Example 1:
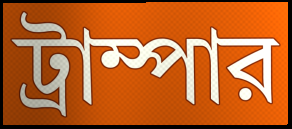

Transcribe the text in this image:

ট্রাম্পার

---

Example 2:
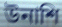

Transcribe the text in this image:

উনাশি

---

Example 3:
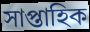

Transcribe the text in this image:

সাপ্তাহিক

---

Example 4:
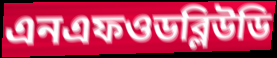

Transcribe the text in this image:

এনএফওডব্লিউডি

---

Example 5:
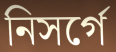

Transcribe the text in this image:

নিসর্গে